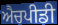
ਐਚਪੀਡੀ